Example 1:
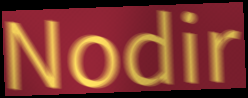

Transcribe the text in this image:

Nodir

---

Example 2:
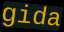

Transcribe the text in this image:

gida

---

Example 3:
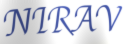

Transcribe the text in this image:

NIRAV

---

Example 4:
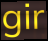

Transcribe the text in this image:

gir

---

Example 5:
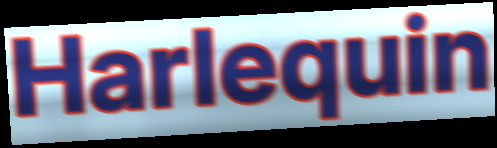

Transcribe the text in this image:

Harlequin